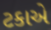
ટકાએ